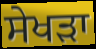
ਸੇਖੜਾ